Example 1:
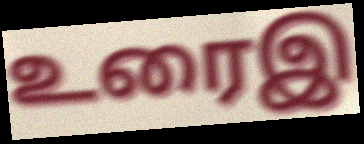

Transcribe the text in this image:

உரைஇ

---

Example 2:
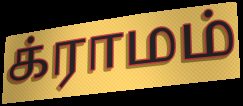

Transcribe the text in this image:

க்ராமம்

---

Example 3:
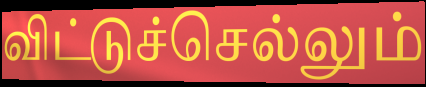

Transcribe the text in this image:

விட்டுச்செல்லும்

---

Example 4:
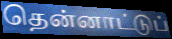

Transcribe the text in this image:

தென்னாட்டுப்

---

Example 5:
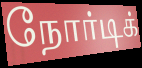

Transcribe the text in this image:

நோர்டிக்